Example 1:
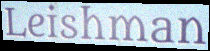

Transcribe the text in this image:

Leishman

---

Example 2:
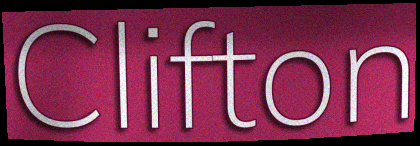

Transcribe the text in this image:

Clifton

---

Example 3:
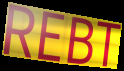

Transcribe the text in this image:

REBT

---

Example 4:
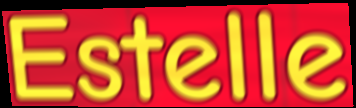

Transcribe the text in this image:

Estelle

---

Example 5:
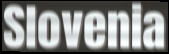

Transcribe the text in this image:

Slovenia